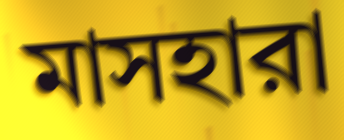
মাসহারা